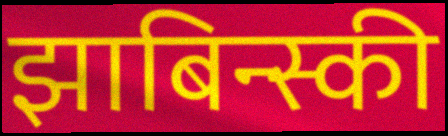
झाबिन्स्की